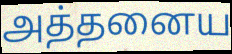
அத்தனைய